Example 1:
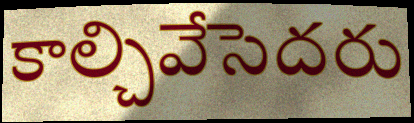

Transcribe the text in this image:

కాల్చివేసెదరు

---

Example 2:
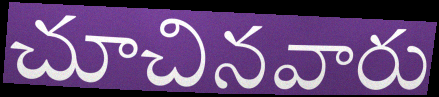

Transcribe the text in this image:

చూచినవారు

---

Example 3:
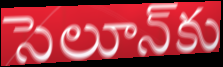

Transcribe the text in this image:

సెలూన్‌కు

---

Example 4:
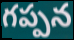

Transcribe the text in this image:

గప్పన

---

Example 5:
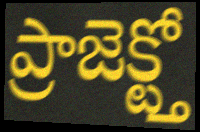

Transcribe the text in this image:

ప్రాజెక్ట్తో